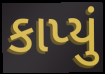
કાપ્યું